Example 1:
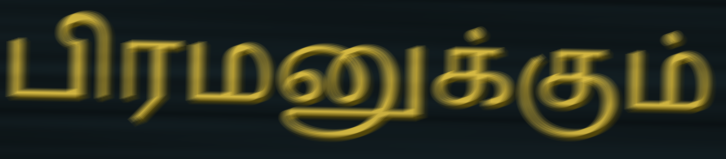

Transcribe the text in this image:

பிரமனுக்கும்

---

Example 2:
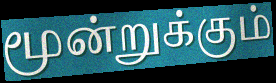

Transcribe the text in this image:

மூன்றுக்கும்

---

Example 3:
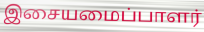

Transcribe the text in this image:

இசையமைப்பாளர்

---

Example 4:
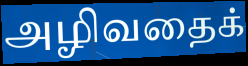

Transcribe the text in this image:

அழிவதைக்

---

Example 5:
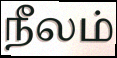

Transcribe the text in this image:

நீலம்